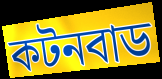
কটনবাড